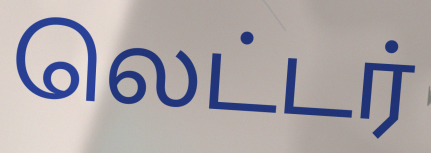
லெட்டர்